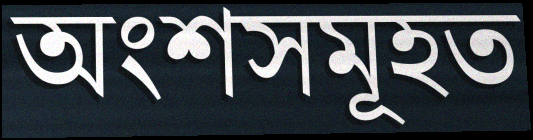
অংশসমূহত